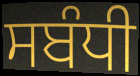
ਸਬੰਧੀ